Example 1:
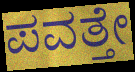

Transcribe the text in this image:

ಪವತ್ತೇ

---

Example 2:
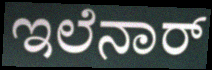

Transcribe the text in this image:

ಇಲೆನಾರ್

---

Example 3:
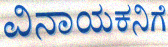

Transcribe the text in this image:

ವಿನಾಯಕನಿಗೆ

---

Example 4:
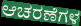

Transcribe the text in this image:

ಆಚರಣೆಗಳ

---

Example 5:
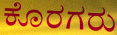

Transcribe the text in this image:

ಕೊರಗರು